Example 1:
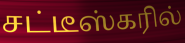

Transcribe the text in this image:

சட்டீஸ்கரில்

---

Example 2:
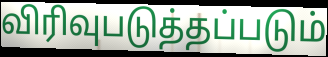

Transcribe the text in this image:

விரிவுபடுத்தப்படும்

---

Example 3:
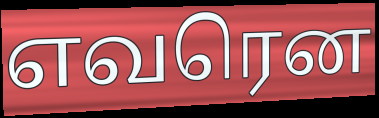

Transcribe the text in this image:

எவரென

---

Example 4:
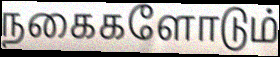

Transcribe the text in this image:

நகைகளோடும்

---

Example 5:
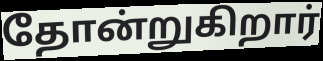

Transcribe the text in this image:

தோன்றுகிறார்